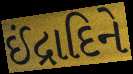
ઈંદ્રાદિને